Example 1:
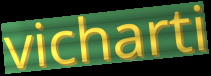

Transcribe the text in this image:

vicharti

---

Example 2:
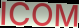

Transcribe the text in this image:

ICOM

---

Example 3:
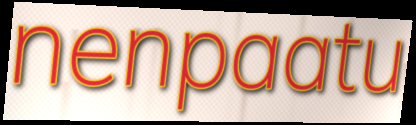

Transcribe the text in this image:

nenpaatu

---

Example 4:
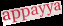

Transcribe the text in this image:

appayya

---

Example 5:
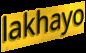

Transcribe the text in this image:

lakhayo